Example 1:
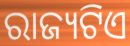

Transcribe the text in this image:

ରାଜ୍ୟଟିଏ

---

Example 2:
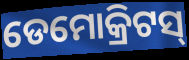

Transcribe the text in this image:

ଡେମୋକ୍ରିଟସ୍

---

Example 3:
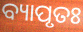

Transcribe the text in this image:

ବ୍ୟାପୃତଃ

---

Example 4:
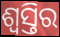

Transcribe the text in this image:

ଶ୍ୱସ୍ତିର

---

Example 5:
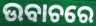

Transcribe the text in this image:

ଉବାଚରେ